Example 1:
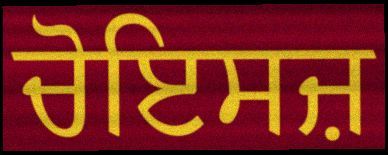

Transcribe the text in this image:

ਚੋਇਸਜ਼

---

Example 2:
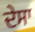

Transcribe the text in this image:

ਦੇਸਾ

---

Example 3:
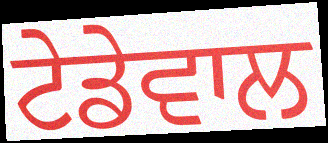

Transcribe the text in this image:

ਟੇਡੇਵਾਲ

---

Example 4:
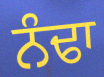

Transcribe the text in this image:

ਨੰਢਾ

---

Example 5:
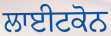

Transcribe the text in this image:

ਲਾਈਟਕੋਨ